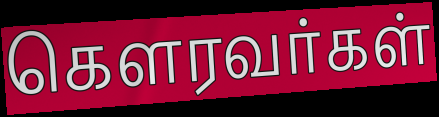
கௌரவர்கள்